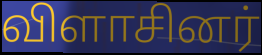
விளாசினர்